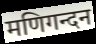
मणिगन्दन